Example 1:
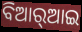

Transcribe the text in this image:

ବିଆର୍‌ଆଇ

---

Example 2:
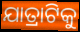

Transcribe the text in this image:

ଯାତ୍ରାଟିକୁ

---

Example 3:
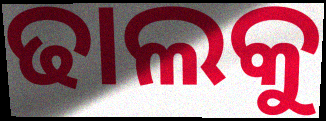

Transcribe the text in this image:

ଢାଲକୁ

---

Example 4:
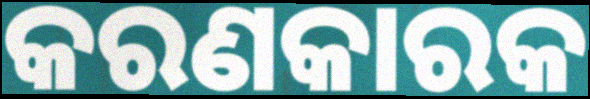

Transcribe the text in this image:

କରଣକାରକ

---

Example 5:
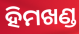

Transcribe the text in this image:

ହିମଖଣ୍ଡ